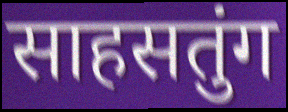
साहसतुंग